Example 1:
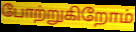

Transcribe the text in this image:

போற்றுகிறோம்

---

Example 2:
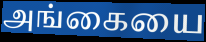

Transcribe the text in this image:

அங்கையை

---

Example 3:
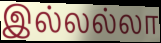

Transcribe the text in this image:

இல்லல்லா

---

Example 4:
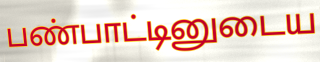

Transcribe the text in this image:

பண்பாட்டினுடைய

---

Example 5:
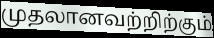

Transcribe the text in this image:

முதலானவற்றிற்கும்